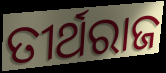
ତୀର୍ଥରାଜ